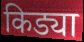
किड्या